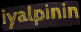
iyalpinin